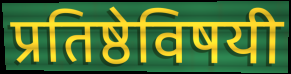
प्रतिष्ठेविषयी